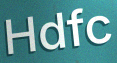
Hdfc